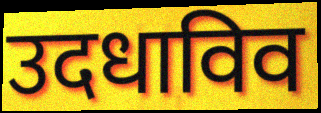
उदधाविव